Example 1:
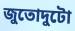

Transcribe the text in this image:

জুতোদুটো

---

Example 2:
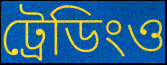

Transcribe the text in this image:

ট্রেডিংও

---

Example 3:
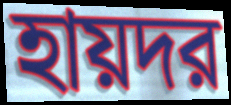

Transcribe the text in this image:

হায়দর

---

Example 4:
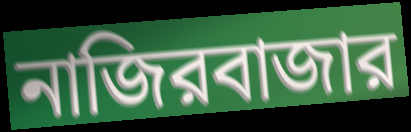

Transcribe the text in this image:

নাজিরবাজার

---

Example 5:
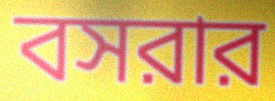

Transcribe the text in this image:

বসরার